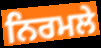
ਨਿਰਮਲੇ